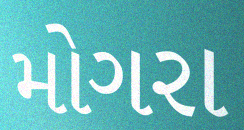
મોગરા